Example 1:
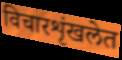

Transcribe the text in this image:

विचारशृंखलेत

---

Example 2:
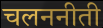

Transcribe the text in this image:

चलननीती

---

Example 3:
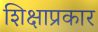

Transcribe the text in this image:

शिक्षाप्रकार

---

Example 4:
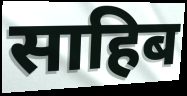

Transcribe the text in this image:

साहिब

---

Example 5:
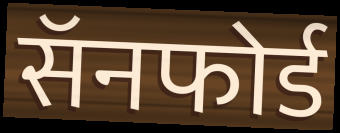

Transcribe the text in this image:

सॅनफोर्ड